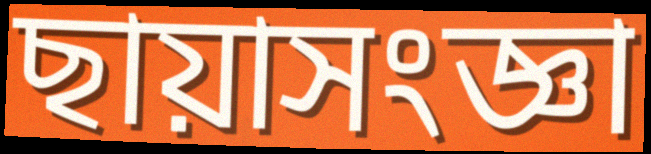
ছায়াসংজ্ঞা